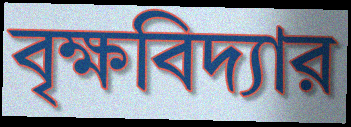
বৃক্ষবিদ্যার